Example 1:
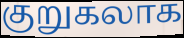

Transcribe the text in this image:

குறுகலாக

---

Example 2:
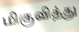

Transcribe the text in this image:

மிகுவித்து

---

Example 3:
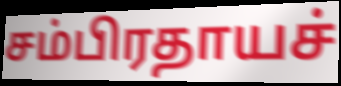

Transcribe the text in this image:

சம்பிரதாயச்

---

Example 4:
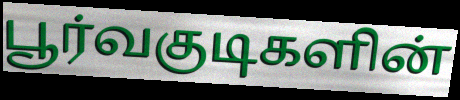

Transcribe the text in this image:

பூர்வகுடிகளின்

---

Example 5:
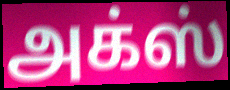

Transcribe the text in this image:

அக்ஸ்